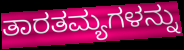
ತಾರತಮ್ಯಗಳನ್ನು